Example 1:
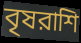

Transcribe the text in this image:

বৃষরাশি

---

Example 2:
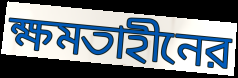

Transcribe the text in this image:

ক্ষমতাহীনের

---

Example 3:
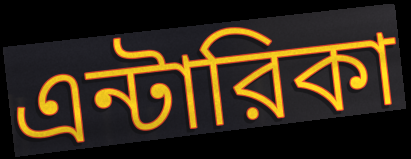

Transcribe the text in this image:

এন্টারিকা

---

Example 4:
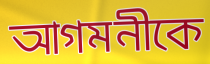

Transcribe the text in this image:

আগমনীকে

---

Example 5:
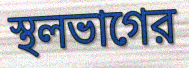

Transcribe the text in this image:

স্থলভাগের